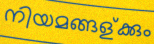
നിയമങ്ങള്ക്കും